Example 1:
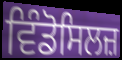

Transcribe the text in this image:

ਵਿੰਡੋਸਿਲਜ਼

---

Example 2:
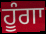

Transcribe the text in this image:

ਹੂੰਗਾ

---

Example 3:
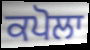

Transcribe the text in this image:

ਕਪੋਲਾ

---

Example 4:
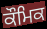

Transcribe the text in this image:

ਕੌਮਿਕ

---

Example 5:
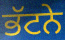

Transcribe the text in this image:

ਭੱਟਨੇ